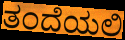
ತಂದೆಯಲಿ